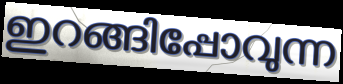
ഇറങ്ങിപ്പോവുന്ന